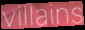
villains